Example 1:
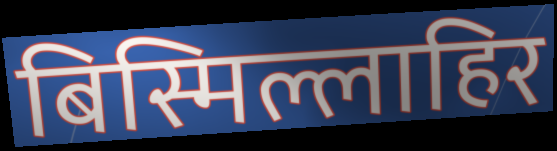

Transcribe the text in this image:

बिस्मिल्लाहिर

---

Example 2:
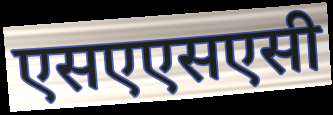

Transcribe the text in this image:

एसएएसएसी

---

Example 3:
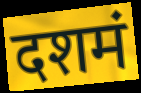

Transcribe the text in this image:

दशमं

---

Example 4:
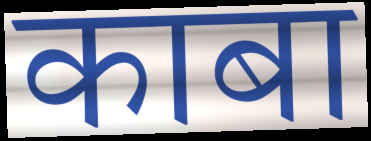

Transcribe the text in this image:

काबा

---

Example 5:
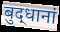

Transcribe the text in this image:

बुद्धानां